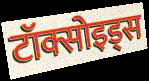
टॉक्सोइड्स